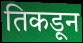
तिकडून